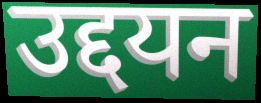
उद्दयन